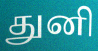
துனி